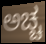
ಅಚ್ಚ